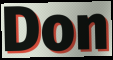
Don